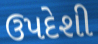
ઉપદેશી